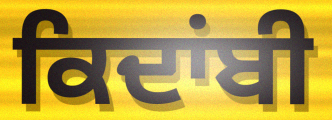
ਕਿਦਾਂਬੀ